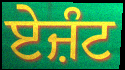
ਏਜ਼ੰਟ